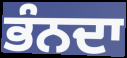
ਭੰਨਦਾ